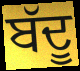
ਬੱਦੂ